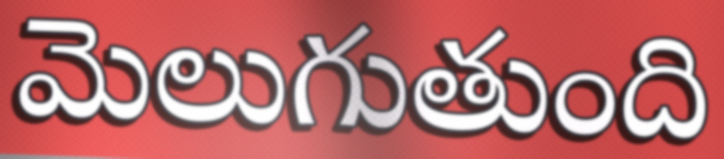
మెలుగుతుంది